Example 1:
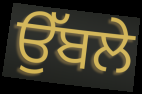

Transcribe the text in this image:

ਉੱਬਲੇ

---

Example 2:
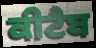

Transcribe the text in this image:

ਕੀਟੈਬ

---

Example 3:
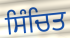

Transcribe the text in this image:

ਸਿੰਚਿਤ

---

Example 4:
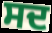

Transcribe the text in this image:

ਸਦ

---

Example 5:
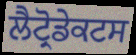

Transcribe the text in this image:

ਲੈਟ੍ਰੋਡੇਕਟਸ